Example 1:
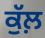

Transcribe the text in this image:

ਕੁੱਲ਼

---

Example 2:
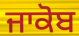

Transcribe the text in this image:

ਜਾਕੋਬ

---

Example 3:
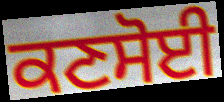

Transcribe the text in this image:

ਕਣਸੋਈ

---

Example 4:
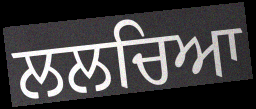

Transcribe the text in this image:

ਲਲਚਿਆ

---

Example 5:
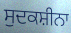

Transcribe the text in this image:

ਸੁਦਕਸ਼ੀਨਾ